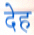
देह